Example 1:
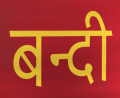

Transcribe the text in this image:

बन्दी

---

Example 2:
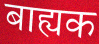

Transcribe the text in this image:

बाह्यक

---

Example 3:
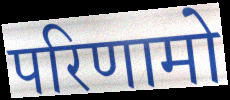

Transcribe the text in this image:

परिणामो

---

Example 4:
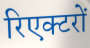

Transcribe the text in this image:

रिएक्टरों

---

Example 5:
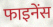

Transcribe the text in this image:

फाइनेंस